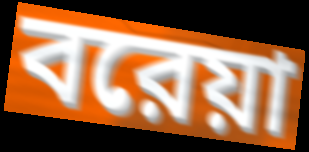
বরেয়া